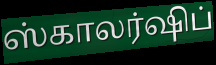
ஸ்காலர்ஷிப்